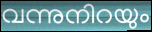
വന്നുനിറയും